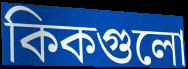
কিকগুলো